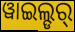
ୱାଇଲ୍ଡର୍